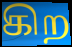
கிற